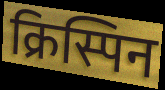
क्रिस्पिन